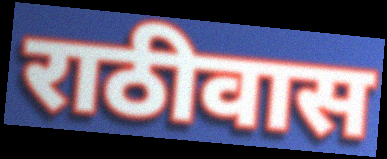
राठीवास